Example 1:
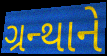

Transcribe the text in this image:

ગ્રન્થાને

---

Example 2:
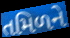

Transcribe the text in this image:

તમિળને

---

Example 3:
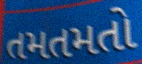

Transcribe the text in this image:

તમતમતો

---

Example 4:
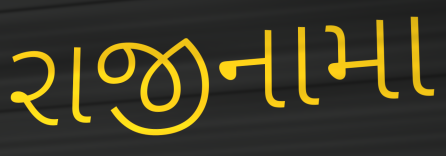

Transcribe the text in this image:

રાજીનામા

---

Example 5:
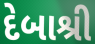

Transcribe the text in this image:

દેબાશ્રી